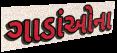
ગાડાંઓના